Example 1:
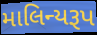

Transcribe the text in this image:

માલિન્યરૂપ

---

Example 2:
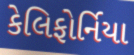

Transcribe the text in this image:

કેલિફોર્નિયા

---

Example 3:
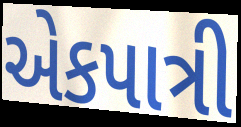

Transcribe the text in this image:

એકપાત્રી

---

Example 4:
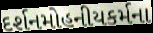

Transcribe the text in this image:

દર્શનમોહનીયકર્મના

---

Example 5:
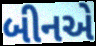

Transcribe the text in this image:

બીનએ